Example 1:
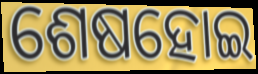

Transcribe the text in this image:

ଶେଷହୋଇ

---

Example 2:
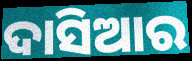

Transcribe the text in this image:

ଦାସିଆର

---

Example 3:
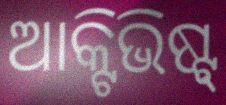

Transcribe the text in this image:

ଆକ୍ଟିଭିଷ୍ଟ୍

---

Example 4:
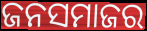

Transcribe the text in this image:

ଜନସମାଜର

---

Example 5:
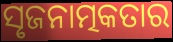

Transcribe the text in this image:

ସୃଜନାତ୍ମକତାର